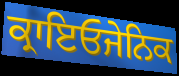
ਕ੍ਰਾਇਓਜੇਨਿਕ